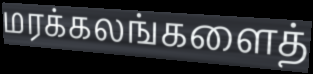
மரக்கலங்களைத்